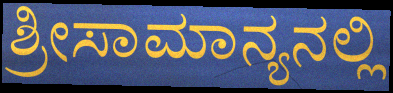
ಶ್ರೀಸಾಮಾನ್ಯನಲ್ಲಿ